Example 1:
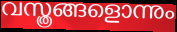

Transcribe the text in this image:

വസ്ത്രങ്ങളൊന്നും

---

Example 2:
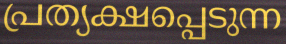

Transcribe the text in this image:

പ്രത്യക്ഷപ്പെടുന്ന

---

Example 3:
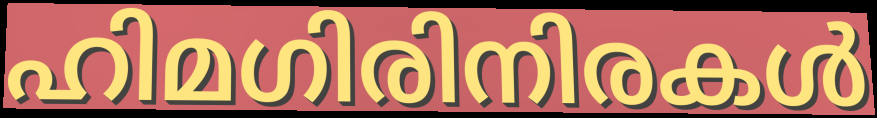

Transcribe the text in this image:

ഹിമഗിരിനിരകൾ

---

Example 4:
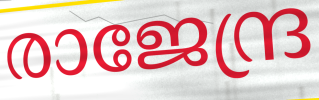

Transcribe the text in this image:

രാജേന്ദ്ര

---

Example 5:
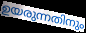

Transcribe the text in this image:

ഉയരുന്നതിനും